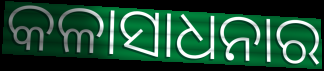
କଳାସାଧନାର